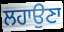
ਲਹਾਉਣਾ